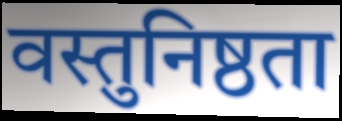
वस्तुनिष्ठता